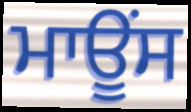
ਮਾਊਂਸ